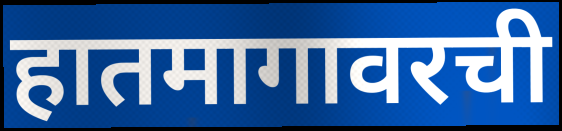
हातमागावरची